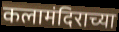
कलामंदिराच्या